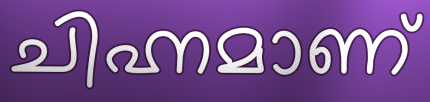
ചിഹ്നമാണ്